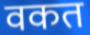
वकत